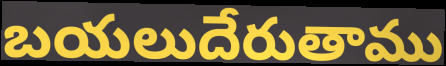
బయలుదేరుతాము